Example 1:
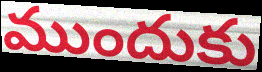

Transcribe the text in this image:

ముందుకు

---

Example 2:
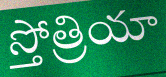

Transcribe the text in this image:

స్తోత్రియా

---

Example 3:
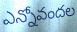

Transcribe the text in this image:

ఎన్నోవందల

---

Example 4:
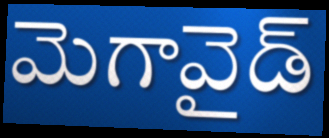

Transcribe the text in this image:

మెగావైడ్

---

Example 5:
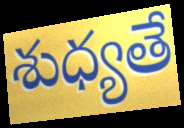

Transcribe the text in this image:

శుధ్యతే